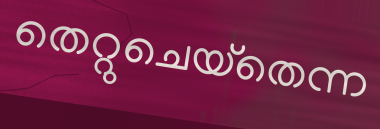
തെറ്റുചെയ്‌തെന്ന